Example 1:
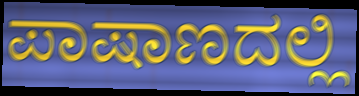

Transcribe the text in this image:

ಪಾಷಾಣದಲ್ಲಿ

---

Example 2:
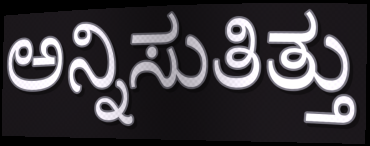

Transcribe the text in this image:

ಅನ್ನಿಸುತಿತ್ತು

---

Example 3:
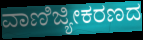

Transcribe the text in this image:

ವಾಣಿಜ್ಯೀಕರಣದ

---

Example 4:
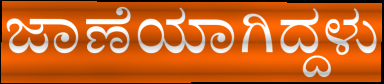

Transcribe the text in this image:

ಜಾಣೆಯಾಗಿದ್ದಳು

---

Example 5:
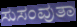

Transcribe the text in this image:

ಸುಸಂವುತಾ